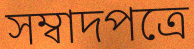
সম্বাদপত্রে